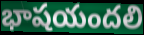
భాషయందలి